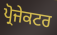
ਪ੍ਰੋਜੇਕਟਰ